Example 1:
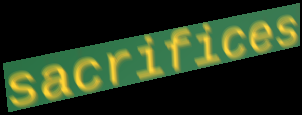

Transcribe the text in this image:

sacrifices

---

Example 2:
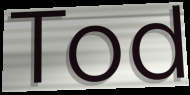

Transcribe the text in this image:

Tod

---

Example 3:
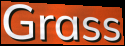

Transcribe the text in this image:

Grass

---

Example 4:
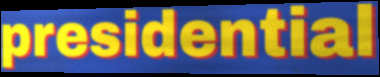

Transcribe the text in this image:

presidential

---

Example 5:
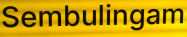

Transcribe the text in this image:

Sembulingam